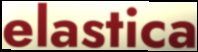
elastica